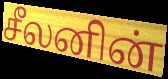
சீலனின்